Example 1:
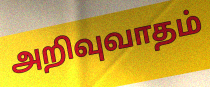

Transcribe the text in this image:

அறிவுவாதம்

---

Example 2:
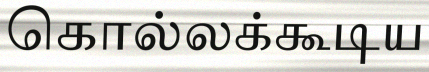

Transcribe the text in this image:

கொல்லக்கூடிய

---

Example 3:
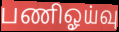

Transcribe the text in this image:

பணிஓய்வு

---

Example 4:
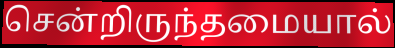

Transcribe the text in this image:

சென்றிருந்தமையால்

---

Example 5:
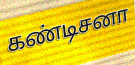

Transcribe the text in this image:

கண்டிசனா